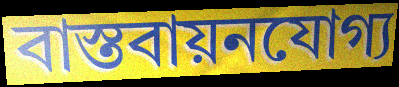
বাস্তবায়নযোগ্য